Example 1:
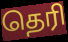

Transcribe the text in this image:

தெரி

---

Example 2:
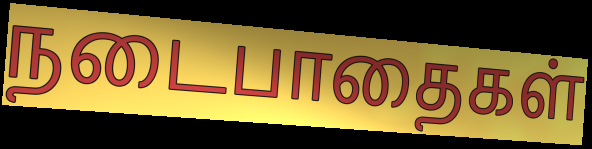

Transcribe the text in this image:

நடைபாதைகள்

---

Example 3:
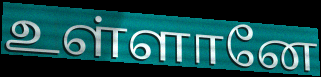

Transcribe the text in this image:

உள்ளானே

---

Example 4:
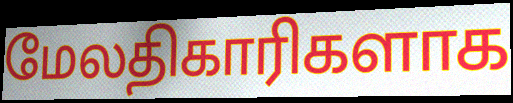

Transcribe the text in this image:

மேலதிகாரிகளாக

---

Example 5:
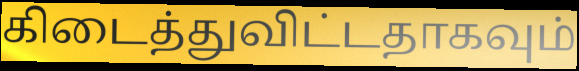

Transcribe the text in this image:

கிடைத்துவிட்டதாகவும்